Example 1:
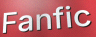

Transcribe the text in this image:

Fanfic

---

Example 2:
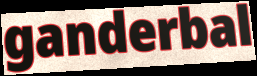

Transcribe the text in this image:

ganderbal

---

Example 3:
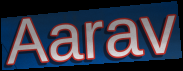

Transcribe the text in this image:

Aarav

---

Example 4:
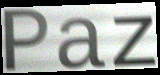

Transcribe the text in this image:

Paz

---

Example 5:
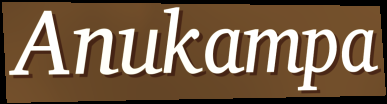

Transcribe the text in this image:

Anukampa